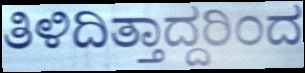
ತಿಳಿದಿತ್ತಾದ್ದರಿಂದ